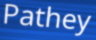
Pathey